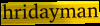
hridayman